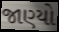
જાણ્યો